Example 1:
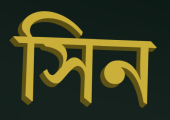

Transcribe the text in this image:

সিন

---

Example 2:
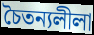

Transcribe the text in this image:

চৈতন্যলীলা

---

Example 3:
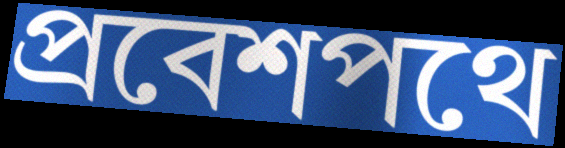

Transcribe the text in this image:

প্রবেশপথে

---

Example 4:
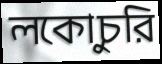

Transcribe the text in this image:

লকোচুরি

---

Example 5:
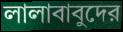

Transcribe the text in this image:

লালাবাবুদের